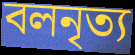
বলনৃত্য